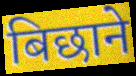
बिछाने